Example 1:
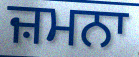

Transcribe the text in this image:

ਜ਼ਮਨਾ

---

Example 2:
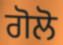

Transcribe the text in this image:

ਗੋਲੋ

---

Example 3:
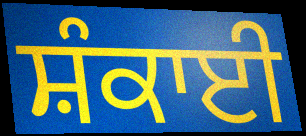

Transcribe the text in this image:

ਸ਼ੰਕਾਈ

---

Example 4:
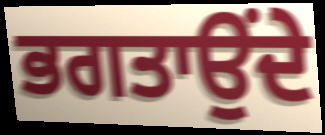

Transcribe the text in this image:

ਭਗਤਾਉਂਦੇ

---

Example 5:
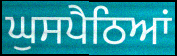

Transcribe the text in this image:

ਘੁਸਪੈਠਿਆਂ